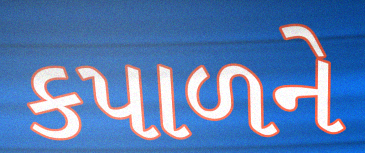
કપાળને